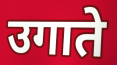
उगाते